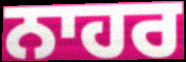
ਨਾਹਰ